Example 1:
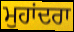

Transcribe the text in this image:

ਮੁਹਾਂਦਰਾ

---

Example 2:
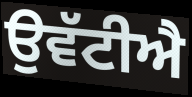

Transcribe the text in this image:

ਉਵੱਟੀਐ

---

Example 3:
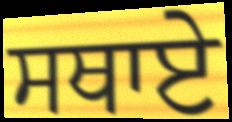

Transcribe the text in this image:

ਸਥਾਏ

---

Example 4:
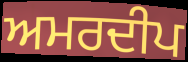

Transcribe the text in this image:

ਅਮਰਦੀਪ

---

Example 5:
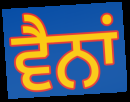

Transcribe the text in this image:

ਵੈਨਾਂ